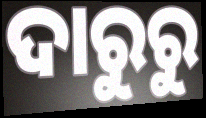
ଦାରୁରୁ